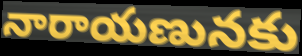
నారాయణునకు